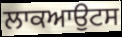
ਲਾਕਆਉਟਸ